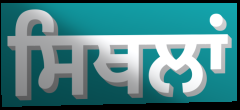
ਸਿਥਲਾਂ